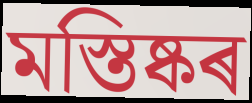
মস্তিষ্কৰ